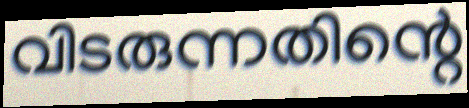
വിടരുന്നതിന്റെ